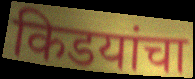
किडयांचा